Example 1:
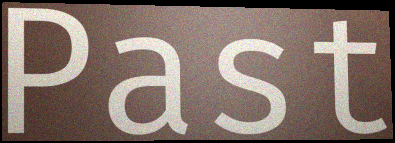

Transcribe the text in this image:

Past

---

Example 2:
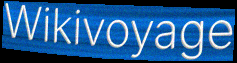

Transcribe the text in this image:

Wikivoyage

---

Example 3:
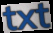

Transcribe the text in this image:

txt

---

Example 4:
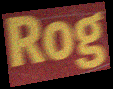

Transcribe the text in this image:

Rog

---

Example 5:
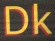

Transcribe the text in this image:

Dk